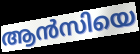
ആൻസിയെ